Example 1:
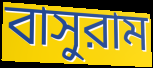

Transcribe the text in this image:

বাসুরাম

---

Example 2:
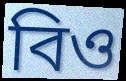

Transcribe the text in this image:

বিও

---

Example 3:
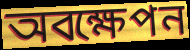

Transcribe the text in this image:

অবক্ষেপন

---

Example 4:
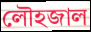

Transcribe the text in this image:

লৌহজাল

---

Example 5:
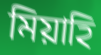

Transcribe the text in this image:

মিয়াহি